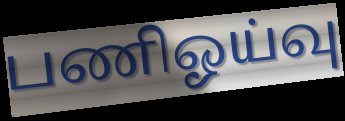
பணிஓய்வு